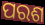
ପରଶ